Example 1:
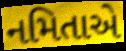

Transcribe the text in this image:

નમિતાએ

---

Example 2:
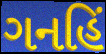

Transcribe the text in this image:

ગનહિં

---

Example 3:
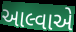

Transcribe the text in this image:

આલ્વાએ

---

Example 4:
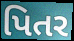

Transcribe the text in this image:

પિતર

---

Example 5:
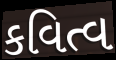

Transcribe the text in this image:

કવિત્વ